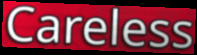
Careless